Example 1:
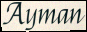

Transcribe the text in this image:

Ayman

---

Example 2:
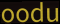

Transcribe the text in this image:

oodu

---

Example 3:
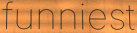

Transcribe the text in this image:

funniest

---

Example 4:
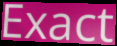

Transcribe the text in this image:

Exact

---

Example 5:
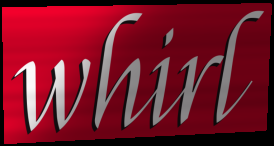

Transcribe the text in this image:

whirl